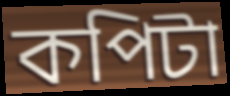
কপিটা